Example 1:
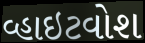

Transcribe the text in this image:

વ્હાઇટવોશ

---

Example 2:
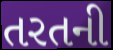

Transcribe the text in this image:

તરતની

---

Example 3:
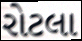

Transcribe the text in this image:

રોટલા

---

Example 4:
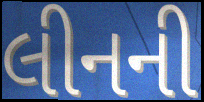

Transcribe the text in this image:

લીનની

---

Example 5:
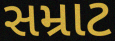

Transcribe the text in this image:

સમ્રાટ